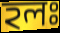
হলঃ